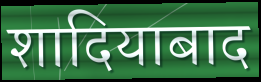
शादियाबाद